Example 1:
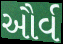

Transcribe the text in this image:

ઔર્વ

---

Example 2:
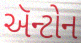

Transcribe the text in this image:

ઍન્ટોન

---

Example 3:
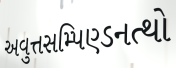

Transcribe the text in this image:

અવુત્તસમ્પિણ્ડનત્થો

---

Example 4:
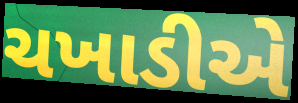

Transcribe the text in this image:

ચખાડીએ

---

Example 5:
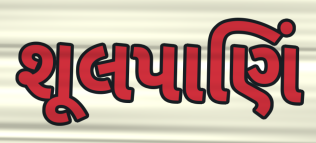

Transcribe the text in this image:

શૂલપાણિં